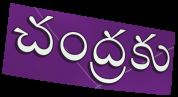
చంద్రకు